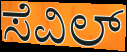
ಸೆವಿಲ್